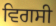
ਵਿਗਸੀ